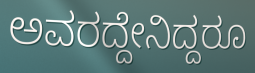
ಅವರದ್ದೇನಿದ್ದರೂ